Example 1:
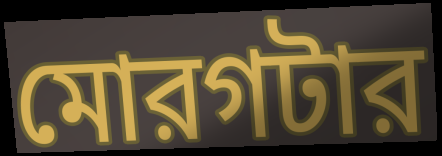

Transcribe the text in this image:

মোরগটার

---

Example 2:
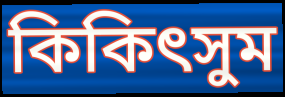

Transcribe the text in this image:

কিকিৎসুম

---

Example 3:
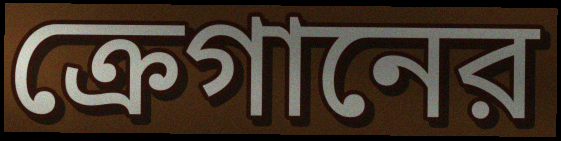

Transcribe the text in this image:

ক্রেগানের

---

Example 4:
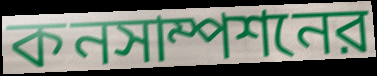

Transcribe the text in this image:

কনসাম্পশনের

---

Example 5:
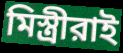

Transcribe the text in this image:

মিস্ত্রীরাই